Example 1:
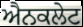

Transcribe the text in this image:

ਐਨਕਲੇਟ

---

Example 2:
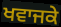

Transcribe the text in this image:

ਖਵਾਜਕੇ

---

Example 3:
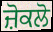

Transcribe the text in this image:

ਜ਼ੋਕਲੋ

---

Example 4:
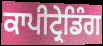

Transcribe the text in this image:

ਕਾਪੀਟ੍ਰੇਡਿੰਗ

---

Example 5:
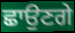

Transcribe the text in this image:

ਛਾਉਣਗੇ